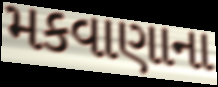
મકવાણાના